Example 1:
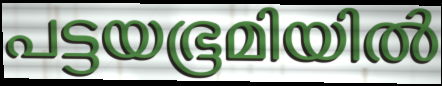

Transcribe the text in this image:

പട്ടയഭൂമിയിൽ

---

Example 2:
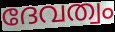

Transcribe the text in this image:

ദേവത്വം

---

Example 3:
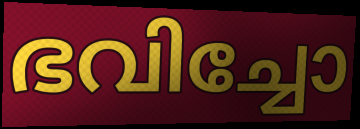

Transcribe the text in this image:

ഭവിച്ചോ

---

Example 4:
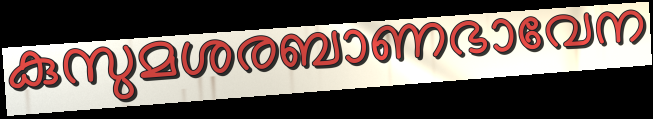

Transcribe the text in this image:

കുസുമശരബാണഭാവേന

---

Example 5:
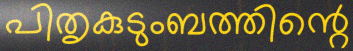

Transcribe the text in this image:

പിതൃകുടുംബത്തിന്റെ